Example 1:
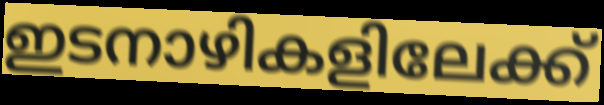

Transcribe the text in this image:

ഇടനാഴികളിലേക്ക്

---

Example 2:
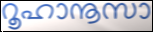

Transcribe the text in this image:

റൂഹാനൂസാ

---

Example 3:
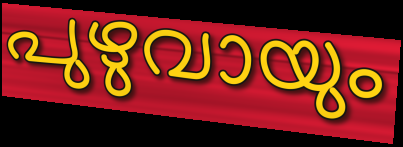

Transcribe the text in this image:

പുഴുവായും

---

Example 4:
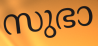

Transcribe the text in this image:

സുഭാ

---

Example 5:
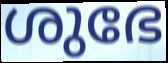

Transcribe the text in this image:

ശുഭേ